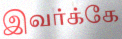
இவர்க்கே